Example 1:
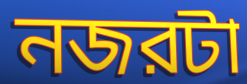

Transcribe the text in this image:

নজরটা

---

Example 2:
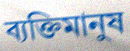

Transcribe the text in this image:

ব্যক্তিমানুষ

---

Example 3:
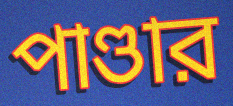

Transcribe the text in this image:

পাণ্ডার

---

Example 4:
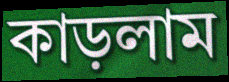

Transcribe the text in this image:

কাড়লাম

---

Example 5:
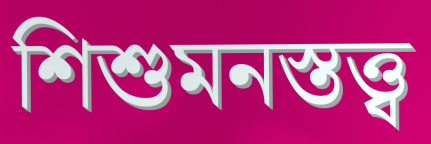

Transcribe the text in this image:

শিশুমনস্তত্ত্ব